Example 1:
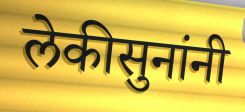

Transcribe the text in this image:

लेकीसुनांनी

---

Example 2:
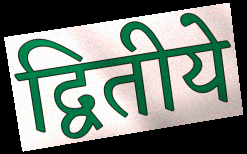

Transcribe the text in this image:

द्वितीये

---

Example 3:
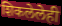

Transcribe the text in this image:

शिकलेलेही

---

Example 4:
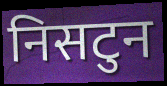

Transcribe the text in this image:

निसटुन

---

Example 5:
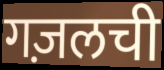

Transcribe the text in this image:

गज़लची